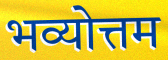
भव्योत्तम